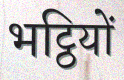
भट्ठियों